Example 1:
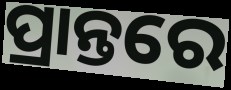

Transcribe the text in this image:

ପ୍ରାନ୍ତରେ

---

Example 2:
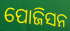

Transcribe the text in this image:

ପୋଜିସନ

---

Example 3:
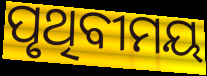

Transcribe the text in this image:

ପୃଥିବୀମୟ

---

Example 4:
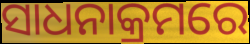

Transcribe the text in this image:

ସାଧନାକ୍ରମରେ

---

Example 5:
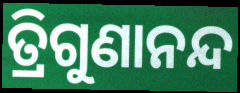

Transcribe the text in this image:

ତ୍ରିଗୁଣାନନ୍ଦ